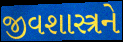
જીવશાસ્ત્રને